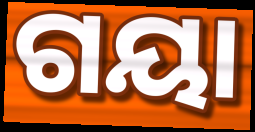
ଗୟା